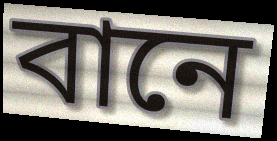
বানে